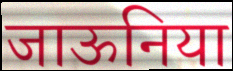
जाऊनिया